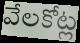
వేలకోట్ల